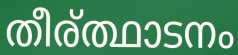
തീര്ത്ഥാടനം